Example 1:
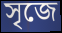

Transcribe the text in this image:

সৃজে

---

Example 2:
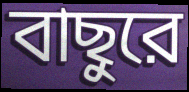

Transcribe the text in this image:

বাছুরে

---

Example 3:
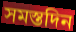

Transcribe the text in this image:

সমস্তদিন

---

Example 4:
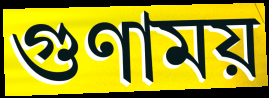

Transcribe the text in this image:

গুণাময়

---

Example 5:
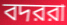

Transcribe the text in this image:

বদররা